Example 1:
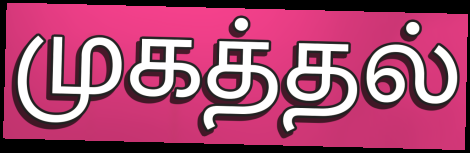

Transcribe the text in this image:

முகத்தல்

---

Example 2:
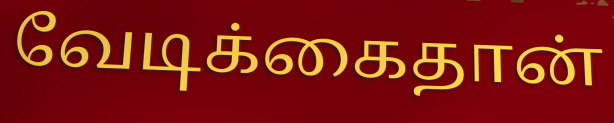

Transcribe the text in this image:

வேடிக்கைதான்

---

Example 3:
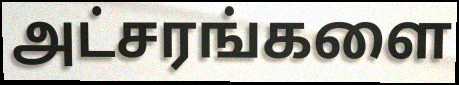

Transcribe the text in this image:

அட்சரங்களை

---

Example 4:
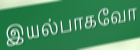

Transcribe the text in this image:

இயல்பாகவோ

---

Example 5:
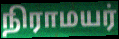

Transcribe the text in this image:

நிராமயர்